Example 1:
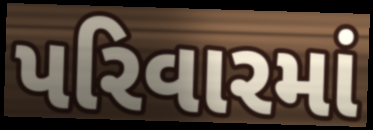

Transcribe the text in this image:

પરિવારમાં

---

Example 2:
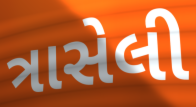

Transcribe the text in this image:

ત્રાસેલી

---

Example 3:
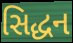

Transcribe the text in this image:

સિદ્ધન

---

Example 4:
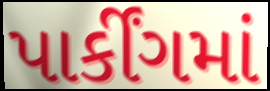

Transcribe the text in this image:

પાર્કીંગમાં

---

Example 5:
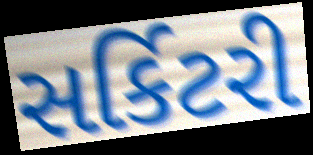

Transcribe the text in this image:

સર્કિટરી